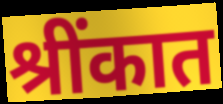
श्रींकात